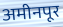
अमीनपूर